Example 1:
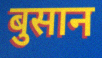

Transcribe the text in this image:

बुसान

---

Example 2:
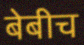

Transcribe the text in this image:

बेबीच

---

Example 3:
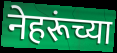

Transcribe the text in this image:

नेहरूंच्या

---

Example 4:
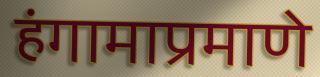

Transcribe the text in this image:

हंगामाप्रमाणे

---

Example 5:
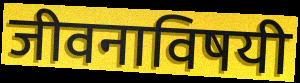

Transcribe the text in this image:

जीवनाविषयी